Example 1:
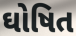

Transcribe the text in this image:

ઘોષિત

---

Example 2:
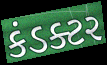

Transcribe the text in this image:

કંડક્ટર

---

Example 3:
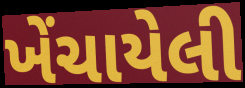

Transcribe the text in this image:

ખેંચાયેલી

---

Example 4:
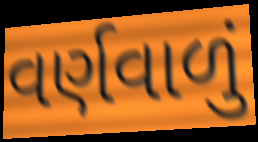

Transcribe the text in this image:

વર્ણવાળું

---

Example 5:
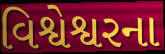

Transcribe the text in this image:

વિશ્વેશ્વરના